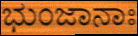
ಭುಂಜಾನಾಃ